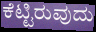
ಕೆಟ್ಟಿರುವುದು